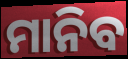
ମାନିବ